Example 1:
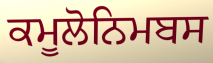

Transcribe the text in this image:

ਕਮੂਲੋਨਿਮਬਸ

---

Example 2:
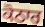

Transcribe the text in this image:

ਕੋਠਾਰ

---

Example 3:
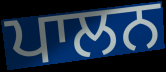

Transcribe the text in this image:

ਪਾਲਨ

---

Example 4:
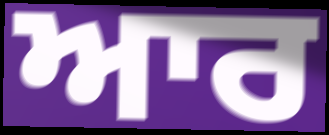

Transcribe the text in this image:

ਆਰ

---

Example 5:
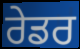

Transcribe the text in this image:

ਰੇਡਰ